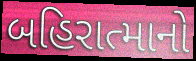
બહિરાત્માનો